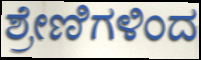
ಶ್ರೇಣಿಗಳಿಂದ